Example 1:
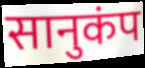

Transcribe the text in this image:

सानुकंप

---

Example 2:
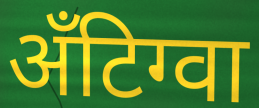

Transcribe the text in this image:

अँटिग्वा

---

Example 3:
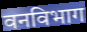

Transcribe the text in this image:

वनविभाग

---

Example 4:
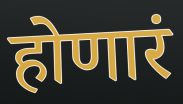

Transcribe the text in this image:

होणारं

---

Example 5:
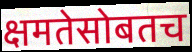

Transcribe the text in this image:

क्षमतेसोबतच